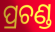
ପ୍ରଚଣ୍ଡ